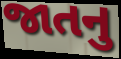
જાતનુ